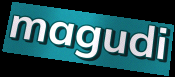
magudi